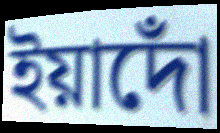
ইয়াদোঁ